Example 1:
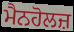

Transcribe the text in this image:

ਮੈਨਹੋਲਜ਼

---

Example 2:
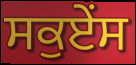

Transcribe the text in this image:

ਸਕੁਏਂਸ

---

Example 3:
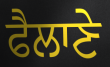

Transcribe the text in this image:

ਫੈਲਾਣੇ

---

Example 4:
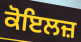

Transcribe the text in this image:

ਕੋਇਲਜ਼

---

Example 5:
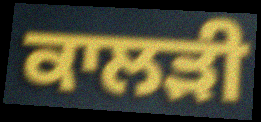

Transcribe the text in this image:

ਕਾਲੜੀ